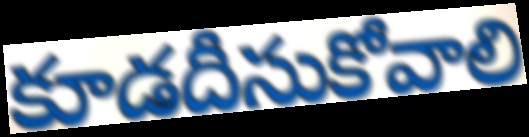
కూడదీసుకోవాలి